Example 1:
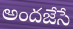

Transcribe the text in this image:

అందజేసే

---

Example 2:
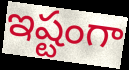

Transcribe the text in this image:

ఇష్టంగా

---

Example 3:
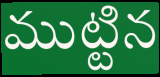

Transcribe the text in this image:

ముట్టిన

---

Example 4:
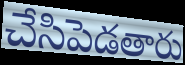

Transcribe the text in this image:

చేసిపెడతారు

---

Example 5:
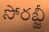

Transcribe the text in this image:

సోరబ్జీ